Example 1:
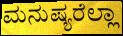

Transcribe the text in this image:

ಮನುಷ್ಯರೆಲ್ಲಾ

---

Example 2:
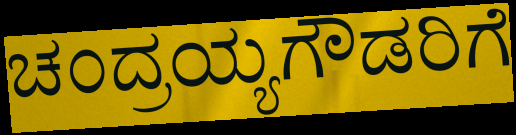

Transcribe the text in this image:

ಚಂದ್ರಯ್ಯಗೌಡರಿಗೆ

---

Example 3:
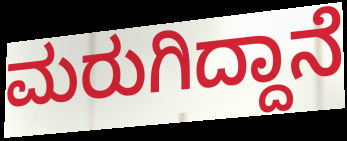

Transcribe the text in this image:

ಮರುಗಿದ್ದಾನೆ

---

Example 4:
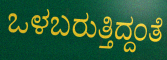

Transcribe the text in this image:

ಒಳಬರುತ್ತಿದ್ದಂತೆ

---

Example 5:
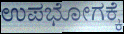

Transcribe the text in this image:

ಉಪಭೋಗಕ್ಕೆ